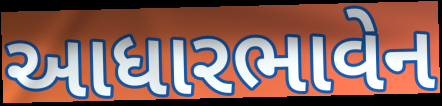
આધારભાવેન